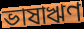
ভাষাঋণ